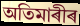
অতিমাৰীৰ